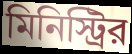
মিনিস্ট্রির